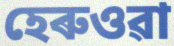
হেৰুওৱা